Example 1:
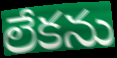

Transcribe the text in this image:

లేకను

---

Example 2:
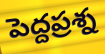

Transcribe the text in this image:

పెద్దప్రశ్న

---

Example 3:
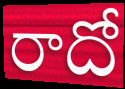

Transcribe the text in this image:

రాదో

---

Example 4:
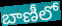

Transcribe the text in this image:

బాణీలో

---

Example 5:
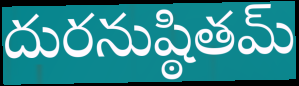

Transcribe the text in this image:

దురనుష్ఠితమ్